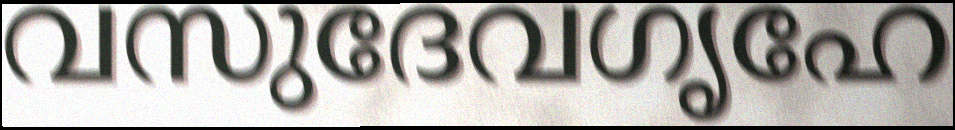
വസുദേവഗൃഹേ